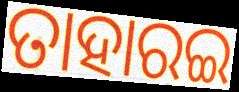
ତାହାରଇ